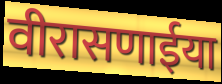
वीरासणाईया